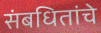
संबधितांचे